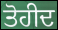
ਤੋਹੀਦ